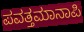
ಪವತ್ತಮಾನಾಪಿ